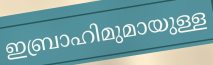
ഇബ്രാഹിമുമായുള്ള